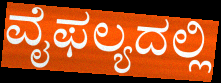
ವೈಫಲ್ಯದಲ್ಲಿ